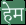
हेम